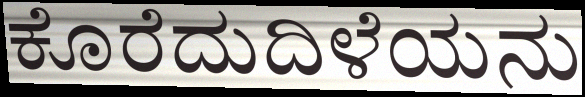
ಕೊರೆದುದಿಳೆಯನು